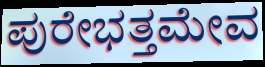
ಪುರೇಭತ್ತಮೇವ